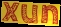
xun